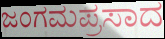
ಜಂಗಮಪ್ರಸಾದ